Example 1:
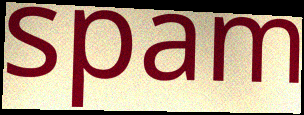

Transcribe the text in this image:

spam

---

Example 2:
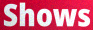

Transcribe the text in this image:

Shows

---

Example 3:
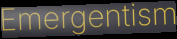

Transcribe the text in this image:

Emergentism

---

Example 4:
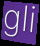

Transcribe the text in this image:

gli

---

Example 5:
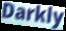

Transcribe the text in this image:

Darkly